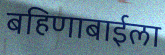
बहिणाबाईला